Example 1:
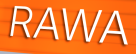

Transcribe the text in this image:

RAWA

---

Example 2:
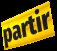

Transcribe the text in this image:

partir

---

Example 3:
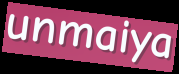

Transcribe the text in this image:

unmaiya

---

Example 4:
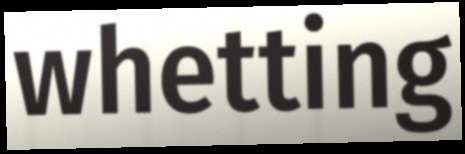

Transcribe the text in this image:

whetting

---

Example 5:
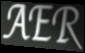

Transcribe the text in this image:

AER